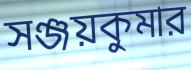
সঞ্জয়কুমার